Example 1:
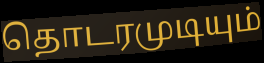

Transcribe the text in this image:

தொடரமுடியும்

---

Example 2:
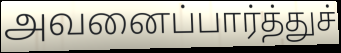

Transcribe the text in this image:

அவனைப்பார்த்துச்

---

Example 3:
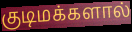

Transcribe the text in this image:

குடிமக்களால்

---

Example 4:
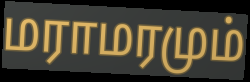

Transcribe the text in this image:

மராமரமும்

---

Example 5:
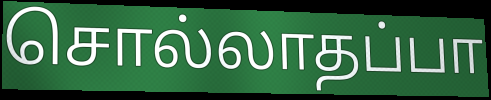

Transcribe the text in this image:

சொல்லாதப்பா